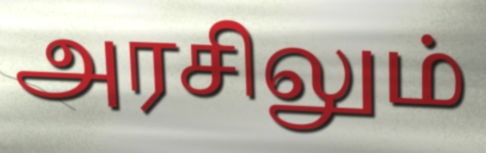
அரசிலும்